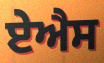
ਏਐਸ